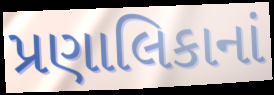
પ્રણાલિકાનાં